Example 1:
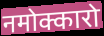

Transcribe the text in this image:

नमोक्कारो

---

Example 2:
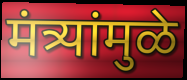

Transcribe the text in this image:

मंत्र्यांमुळे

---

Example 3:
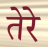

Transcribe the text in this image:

तेरे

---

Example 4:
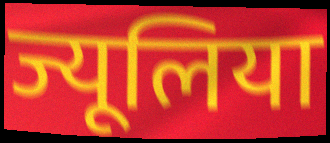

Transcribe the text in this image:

ज्यूलिया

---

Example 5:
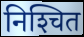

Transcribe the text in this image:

निश्‍चित